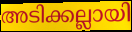
അടിക്കല്ലായി